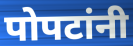
पोपटांनी